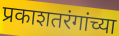
प्रकाशतरंगांच्या